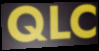
QLC